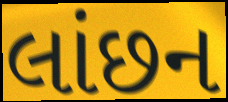
લાંછન